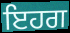
ਇਹਗ